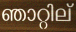
ഞാറ്റില്